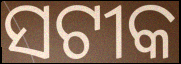
ସଟୀକ